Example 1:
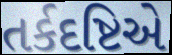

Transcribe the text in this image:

તર્કદષ્ટિએ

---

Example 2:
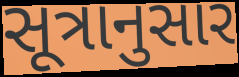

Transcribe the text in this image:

સૂત્રાનુસાર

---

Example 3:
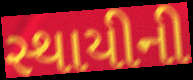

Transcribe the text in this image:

સ્થાયીની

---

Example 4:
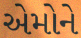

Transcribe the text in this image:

એમોને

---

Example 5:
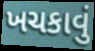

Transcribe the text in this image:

ખચકાવું